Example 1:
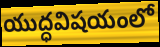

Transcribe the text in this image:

యుద్ధవిషయంలో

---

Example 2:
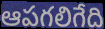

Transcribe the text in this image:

ఆపగలిగేది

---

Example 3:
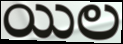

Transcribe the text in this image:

యిల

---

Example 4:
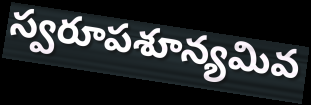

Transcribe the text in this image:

స్వరూపశూన్యమివ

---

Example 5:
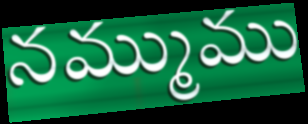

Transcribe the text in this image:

నమ్ముము